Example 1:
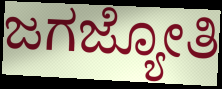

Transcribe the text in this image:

ಜಗಜ್ಯೋತಿ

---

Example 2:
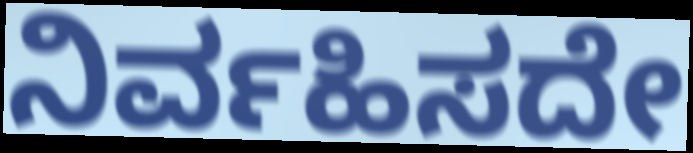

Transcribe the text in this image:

ನಿರ್ವಹಿಸದೇ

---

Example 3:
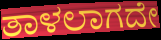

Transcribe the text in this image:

ತಾಳಲಾಗದೇ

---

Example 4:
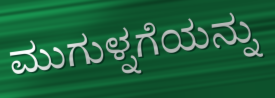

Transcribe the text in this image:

ಮುಗುಳ್ನಗೆಯನ್ನು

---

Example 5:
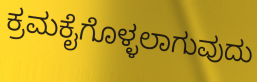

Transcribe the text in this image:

ಕ್ರಮಕೈಗೊಳ್ಳಲಾಗುವುದು